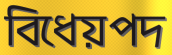
বিধেয়পদ